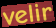
velir